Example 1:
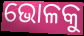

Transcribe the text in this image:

ଭୋଳକୁ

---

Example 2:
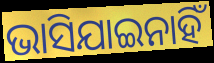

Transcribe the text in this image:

ଭାସିଯାଇନାହିଁ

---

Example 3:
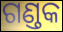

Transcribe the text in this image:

ଗଣ୍ଡକ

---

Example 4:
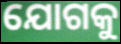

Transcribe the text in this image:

ଯୋଗକୁ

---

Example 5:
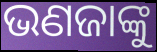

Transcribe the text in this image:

ଭଣଜାଙ୍କୁ